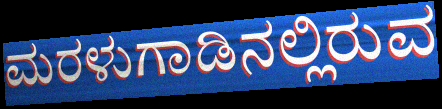
ಮರಳುಗಾಡಿನಲ್ಲಿರುವ